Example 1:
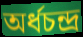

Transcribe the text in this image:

অর্ধচন্দ্র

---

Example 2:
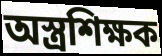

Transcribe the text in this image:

অস্ত্রশিক্ষক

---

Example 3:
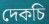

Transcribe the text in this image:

দেকচি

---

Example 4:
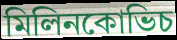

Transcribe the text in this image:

মিলিনকোভিচ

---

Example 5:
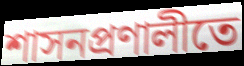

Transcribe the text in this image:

শাসনপ্রণালীতে